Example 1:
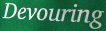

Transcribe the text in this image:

Devouring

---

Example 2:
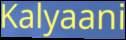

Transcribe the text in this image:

Kalyaani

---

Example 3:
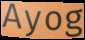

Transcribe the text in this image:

Ayog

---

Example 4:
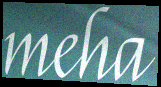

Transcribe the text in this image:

meha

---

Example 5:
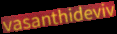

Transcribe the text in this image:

vasanthideviv